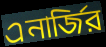
এনার্জির